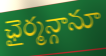
ఛైర్మన్గానూ